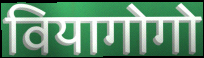
वियागोगो